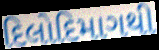
દિલોદિમાગથી